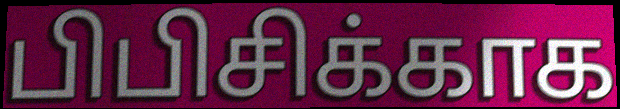
பிபிசிக்காக